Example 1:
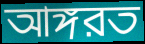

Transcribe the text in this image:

আঙ্গরত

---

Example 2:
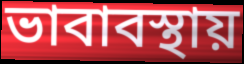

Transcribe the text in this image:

ভাবাবস্থায়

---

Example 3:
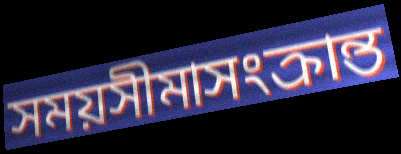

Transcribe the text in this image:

সময়সীমাসংক্রান্ত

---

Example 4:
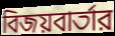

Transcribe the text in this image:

বিজয়বার্তার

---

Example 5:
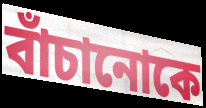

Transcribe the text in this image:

বাঁচানোকে